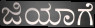
ಜಿಯಾಗೆ